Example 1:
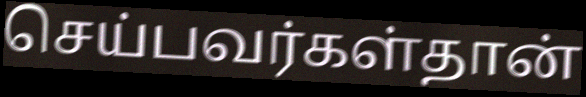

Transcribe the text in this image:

செய்பவர்கள்தான்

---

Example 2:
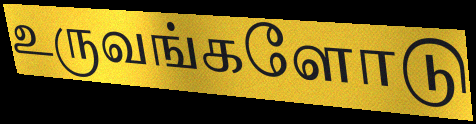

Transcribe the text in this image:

உருவங்களோடு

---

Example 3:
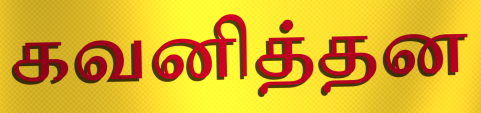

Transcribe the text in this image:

கவனித்தன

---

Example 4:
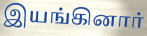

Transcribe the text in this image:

இயங்கினார்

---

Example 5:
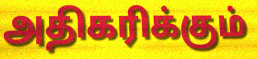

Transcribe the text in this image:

அதிகரிக்கும்